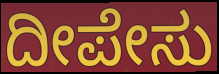
ದೀಪೇಸು